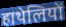
हाथेलियों